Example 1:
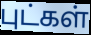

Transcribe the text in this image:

புட்கள்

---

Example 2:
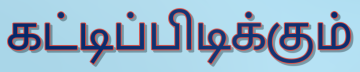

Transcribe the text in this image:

கட்டிப்பிடிக்கும்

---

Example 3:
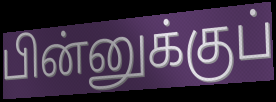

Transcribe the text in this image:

பின்னுக்குப்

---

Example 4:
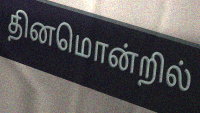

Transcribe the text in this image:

தினமொன்றில்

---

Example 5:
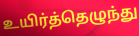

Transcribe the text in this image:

உயிர்த்தெழுந்து